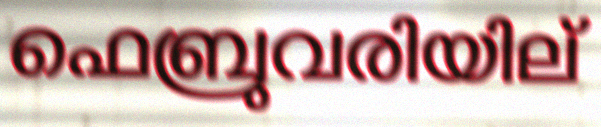
ഫെബ്രുവരിയില്